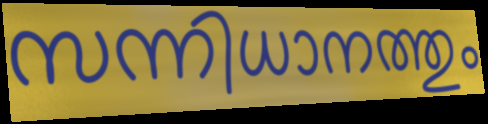
സന്നിധാനത്തും